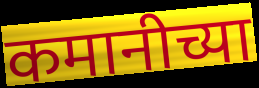
कमानीच्या